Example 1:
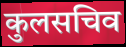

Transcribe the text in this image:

कुलसचिव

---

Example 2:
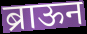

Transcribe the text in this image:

ब्राऊन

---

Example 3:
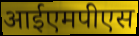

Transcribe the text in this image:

आईएमपीएस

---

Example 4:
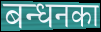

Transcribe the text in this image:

बन्धनका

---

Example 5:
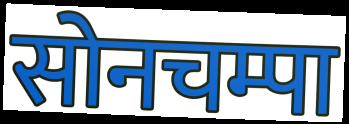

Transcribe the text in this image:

सोनचम्पा